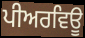
ਪੀਅਰਵਿਊ